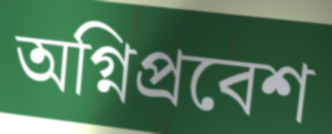
অগ্নিপ্রবেশ